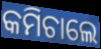
କମିଚାଲେ